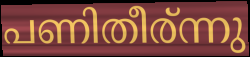
പണിതീര്ന്നു